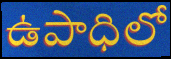
ఉపాధిలో